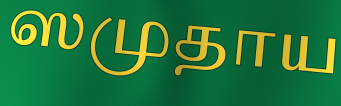
ஸமுதாய